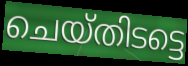
ചെയ്തിടട്ടെ